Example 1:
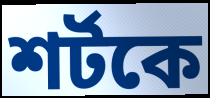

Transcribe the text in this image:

শর্টকে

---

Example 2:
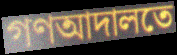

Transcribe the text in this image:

গণআদালতে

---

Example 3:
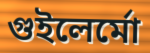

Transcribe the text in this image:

গুইলের্মো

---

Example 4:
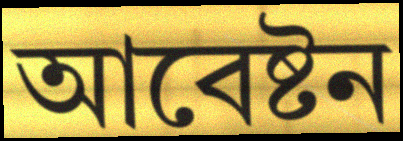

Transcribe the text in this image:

আবেষ্টন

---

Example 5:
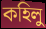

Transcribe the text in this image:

কহিলু